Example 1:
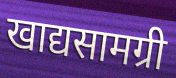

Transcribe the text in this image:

खाद्यसामग्री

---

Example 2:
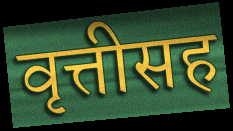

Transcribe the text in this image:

वृत्तीसह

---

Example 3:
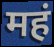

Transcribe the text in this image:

महं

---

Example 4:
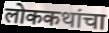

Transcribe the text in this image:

लोककथांचा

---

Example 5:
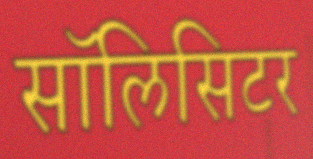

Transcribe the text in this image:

सॉलिसिटर